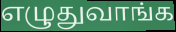
எழுதுவாங்க